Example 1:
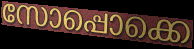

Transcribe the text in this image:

സോപ്പൊക്കെ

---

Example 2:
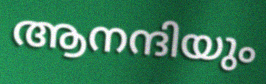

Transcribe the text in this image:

ആനന്ദിയും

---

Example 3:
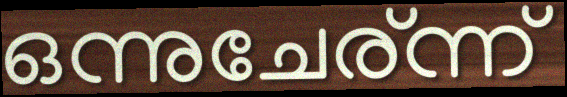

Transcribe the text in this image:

ഒന്നുചേര്ന്ന്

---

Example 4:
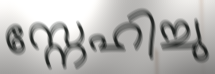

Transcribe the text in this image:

സ്നേഹിച്ചു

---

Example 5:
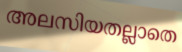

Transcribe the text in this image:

അലസിയതല്ലാതെ